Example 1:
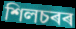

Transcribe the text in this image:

শিলচৰৰ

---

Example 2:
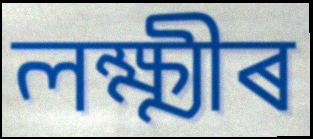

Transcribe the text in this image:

লক্ষ্মীৰ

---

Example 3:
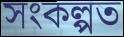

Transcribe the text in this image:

সংকল্পত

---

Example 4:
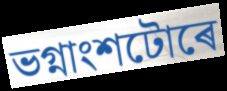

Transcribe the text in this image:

ভগ্নাংশটোৰে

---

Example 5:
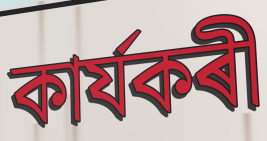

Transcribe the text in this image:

কাৰ্যকৰী